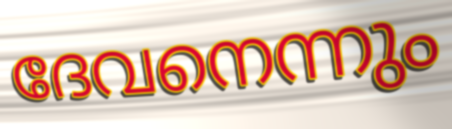
ദേവനെന്നും